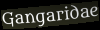
Gangaridae